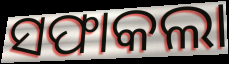
ସଫାକଲା